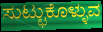
ಸುಟ್ಟುಕೊಳ್ಳುವ